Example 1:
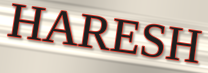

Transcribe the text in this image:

HARESH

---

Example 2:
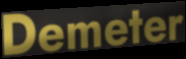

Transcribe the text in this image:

Demeter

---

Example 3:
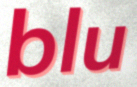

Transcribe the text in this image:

blu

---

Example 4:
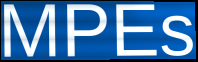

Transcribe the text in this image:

MPEs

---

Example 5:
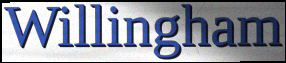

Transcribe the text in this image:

Willingham